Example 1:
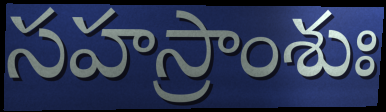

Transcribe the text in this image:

సహస్రాంశుః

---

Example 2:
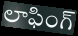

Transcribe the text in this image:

లాఫింగ్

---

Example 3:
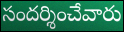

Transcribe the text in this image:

సందర్శించేవారు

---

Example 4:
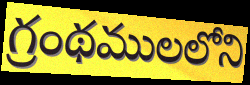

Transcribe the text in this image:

గ్రంథములలోని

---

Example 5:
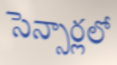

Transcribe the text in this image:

సెన్సార్లలో